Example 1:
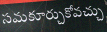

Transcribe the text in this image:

సమకూర్చుకోవచ్చు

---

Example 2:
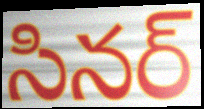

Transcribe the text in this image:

సినర్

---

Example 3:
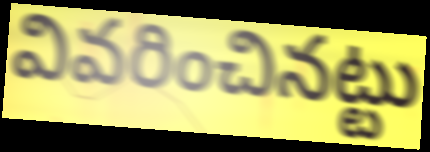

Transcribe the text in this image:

వివరించినట్టు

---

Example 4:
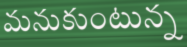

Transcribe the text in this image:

మనుకుంటున్న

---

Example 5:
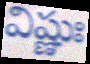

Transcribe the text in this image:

విష్ణుః